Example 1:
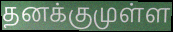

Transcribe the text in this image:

தனக்குமுள்ள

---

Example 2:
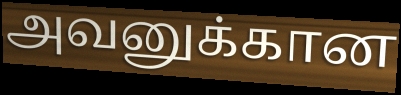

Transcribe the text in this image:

அவனுக்கான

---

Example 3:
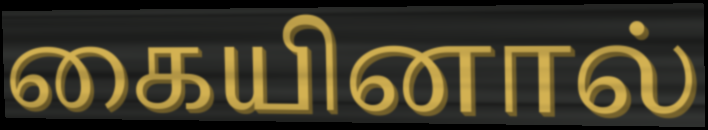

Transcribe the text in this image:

கையினால்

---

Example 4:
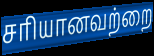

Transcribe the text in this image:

சரியானவற்றை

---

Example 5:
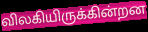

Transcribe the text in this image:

விலகியிருக்கின்றன